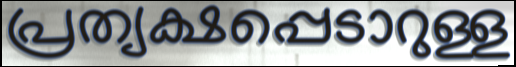
പ്രത്യക്ഷപ്പെടാറുള്ള